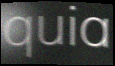
quia